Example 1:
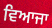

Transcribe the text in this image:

ਵਿਆਜਾ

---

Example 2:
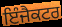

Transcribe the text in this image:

ਇੰਜੈਕਟਰ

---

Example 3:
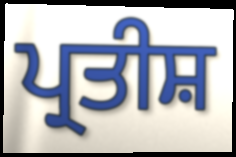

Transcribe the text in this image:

ਪ੍ਰਤੀਸ਼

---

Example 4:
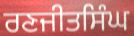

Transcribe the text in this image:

ਰਣਜੀਤਸਿੰਘ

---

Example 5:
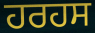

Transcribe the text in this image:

ਹਰਹਸ